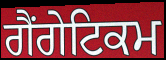
ਗੈਂਗੇਟਿਕਮ